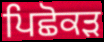
ਪਿਛੋਕੜ